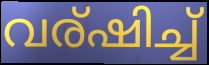
വര്ഷിച്ച്